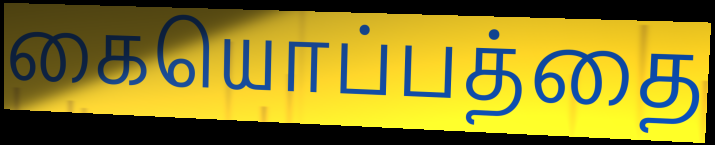
கையொப்பத்தை